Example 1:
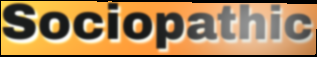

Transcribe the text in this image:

Sociopathic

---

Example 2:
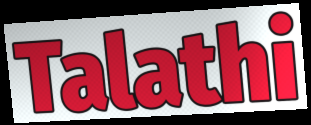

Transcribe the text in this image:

Talathi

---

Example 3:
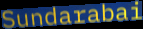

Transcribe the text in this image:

Sundarabai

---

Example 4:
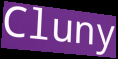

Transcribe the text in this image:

Cluny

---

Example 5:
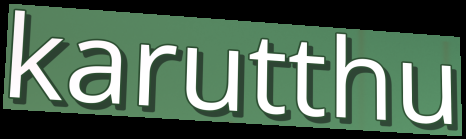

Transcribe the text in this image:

karutthu